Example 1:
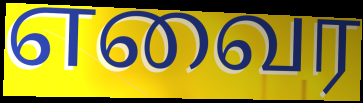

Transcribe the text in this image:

எவைர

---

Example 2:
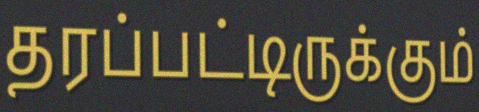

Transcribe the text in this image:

தரப்பட்டிருக்கும்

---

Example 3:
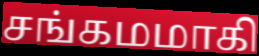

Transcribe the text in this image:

சங்கமமாகி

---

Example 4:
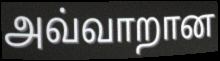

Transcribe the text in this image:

அவ்வாறான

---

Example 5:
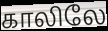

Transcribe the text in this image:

காலிலே